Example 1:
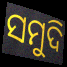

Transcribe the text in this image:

ସମୁଦି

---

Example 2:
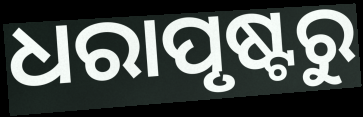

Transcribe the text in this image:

ଧରାପୃଷ୍ଟରୁ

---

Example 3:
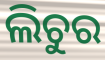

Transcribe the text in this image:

ଲିଚୁର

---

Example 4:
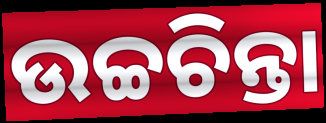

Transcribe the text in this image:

ଉଚ୍ଚଚିନ୍ତା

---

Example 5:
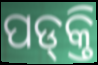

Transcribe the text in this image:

ପଡ୍‌କ୍ତି